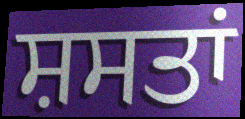
ਸ਼ਸਤਾਂ